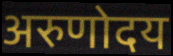
अरुणोदय